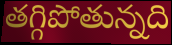
తగ్గిపోతున్నది